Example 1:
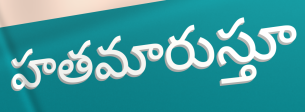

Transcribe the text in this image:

హతమారుస్తూ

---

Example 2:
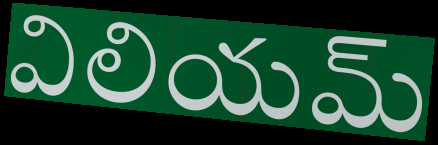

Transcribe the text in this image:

విలియమ్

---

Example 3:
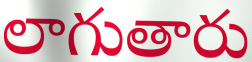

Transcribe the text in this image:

లాగుతారు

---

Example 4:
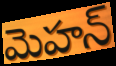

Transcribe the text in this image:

మెహన్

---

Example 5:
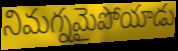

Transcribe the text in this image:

నిమగ్నమైపోయాడు